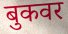
बुकवर